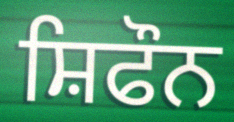
ਸ਼ਿਫੌਨ